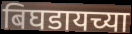
बिघडायच्या